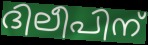
ദിലീപിന്